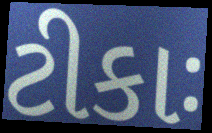
ટીકાઃ